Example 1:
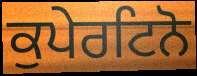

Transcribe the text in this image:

ਕੁਪੇਰਟਿਨੋ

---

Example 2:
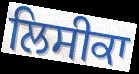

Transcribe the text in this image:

ਲਿਸੀਕਾ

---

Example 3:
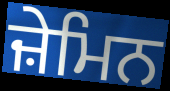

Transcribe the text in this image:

ਜ਼ੇਮਿਨ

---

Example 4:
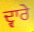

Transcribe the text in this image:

ਦ੍ਵਾਰੇ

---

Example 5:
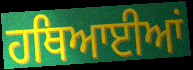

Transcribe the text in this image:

ਹਥਿਆਈਆਂ